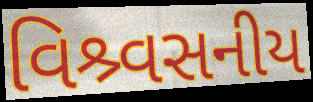
વિશ્ર્વસનીય